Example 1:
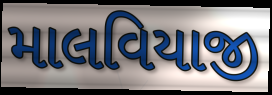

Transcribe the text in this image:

માલવિયાજી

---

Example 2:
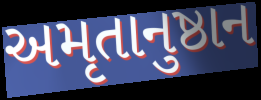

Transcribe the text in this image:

અમૃતાનુષ્ઠાન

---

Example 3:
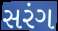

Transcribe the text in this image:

સરંગ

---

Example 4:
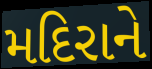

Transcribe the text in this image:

મદિરાને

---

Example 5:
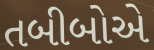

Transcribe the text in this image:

તબીબોએ